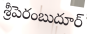
శ్రీపెరంబుదూర్